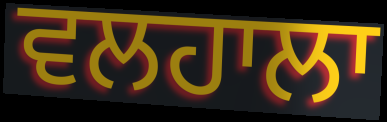
ਵਲਹਾਲਾ